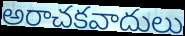
అరాచకవాదులు